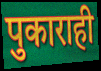
पुकाराही